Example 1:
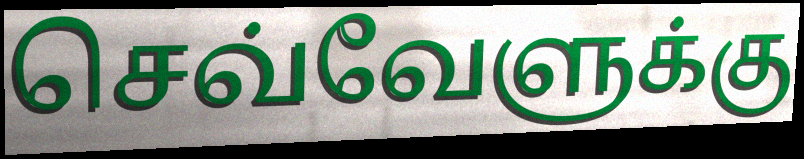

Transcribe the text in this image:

செவ்வேளுக்கு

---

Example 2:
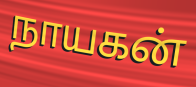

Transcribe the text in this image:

நாயகன்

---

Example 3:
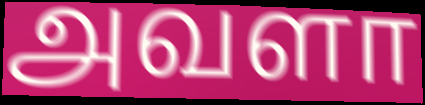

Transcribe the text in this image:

அவளா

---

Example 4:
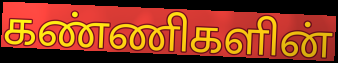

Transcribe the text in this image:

கண்ணிகளின்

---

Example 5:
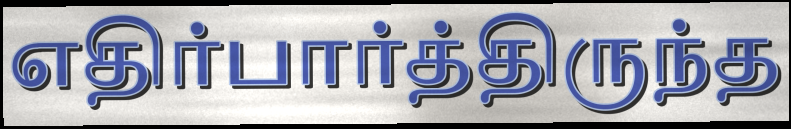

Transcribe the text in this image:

எதிர்பார்த்திருந்த